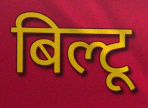
बिल्टू